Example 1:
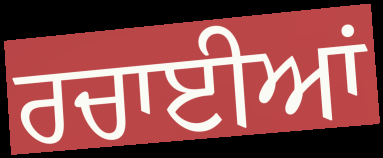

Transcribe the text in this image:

ਰਚਾਈਆਂ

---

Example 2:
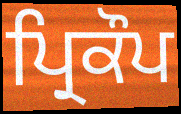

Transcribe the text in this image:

ਪ੍ਰਿਕੌਪ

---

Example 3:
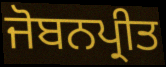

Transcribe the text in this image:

ਜੋਬਨਪ੍ਰੀਤ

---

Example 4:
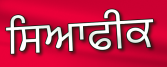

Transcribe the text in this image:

ਸਿਆਫੀਕ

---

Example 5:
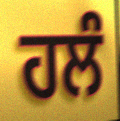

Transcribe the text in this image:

ਹਲੰ